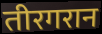
तीरगरान